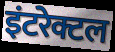
इंटरेक्टल